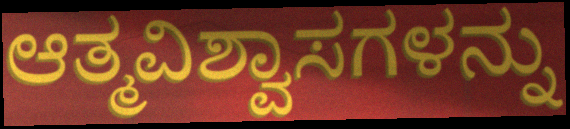
ಆತ್ಮವಿಶ್ವಾಸಗಳನ್ನು